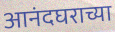
आनंदघराच्या